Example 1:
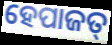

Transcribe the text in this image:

ହେପାଜତ୍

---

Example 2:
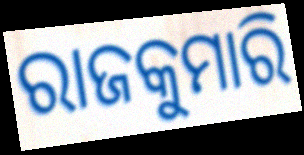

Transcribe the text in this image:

ରାଜକୁମାରି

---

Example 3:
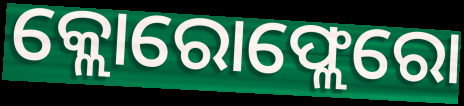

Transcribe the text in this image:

କ୍ଲୋରୋଫ୍ଲେରୋ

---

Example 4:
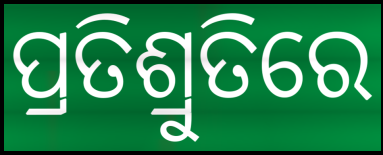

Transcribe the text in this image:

ପ୍ରତିଶ୍ରୁତିରେ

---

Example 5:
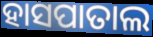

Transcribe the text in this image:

ହାସପାତାଲ